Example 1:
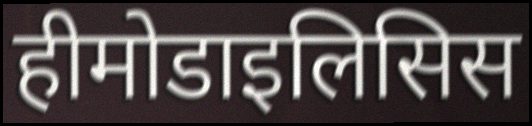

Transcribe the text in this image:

हीमोडाइलिसिस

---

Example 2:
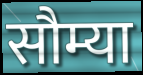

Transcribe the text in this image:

सौम्या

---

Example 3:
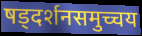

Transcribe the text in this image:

षड्दर्शनसमुच्चय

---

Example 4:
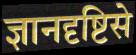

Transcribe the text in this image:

ज्ञानदृष्टिसे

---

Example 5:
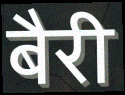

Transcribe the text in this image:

बैरी